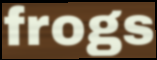
frogs